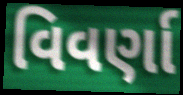
વિવર્ણા